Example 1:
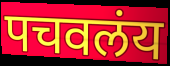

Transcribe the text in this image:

पचवलंय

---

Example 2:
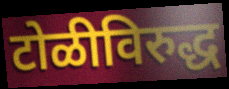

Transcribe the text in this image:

टोळीविरुद्ध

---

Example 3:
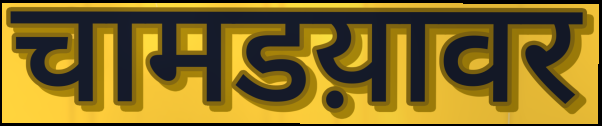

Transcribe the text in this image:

चामडय़ावर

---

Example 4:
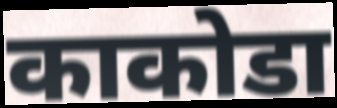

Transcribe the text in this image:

काकोडा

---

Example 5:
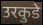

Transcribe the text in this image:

उरकुडे